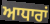
ਆਧਾਰਾਂ